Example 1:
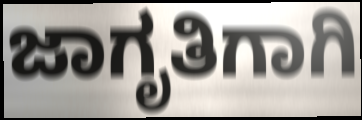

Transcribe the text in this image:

ಜಾಗೃತಿಗಾಗಿ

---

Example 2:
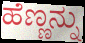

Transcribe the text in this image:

ಹೆಣ್ಣನ್ನು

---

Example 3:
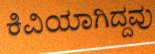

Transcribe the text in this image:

ಕಿವಿಯಾಗಿದ್ದವು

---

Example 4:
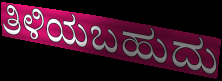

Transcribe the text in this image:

ತಿಳಿಯಬಹುದು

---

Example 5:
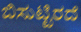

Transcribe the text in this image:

ಬಿಸುಟ್ಟಿರದೆ